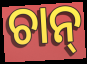
ଚାନ୍